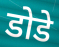
डोडे